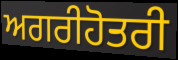
ਅਗਰੀਹੋਤਰੀ